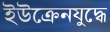
ইউক্রেনযুদ্ধে